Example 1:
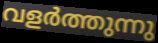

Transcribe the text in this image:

വളർത്തുന്നു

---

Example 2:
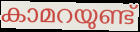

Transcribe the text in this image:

കാമറയുണ്ട്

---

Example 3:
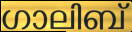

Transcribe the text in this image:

ഗാലിബ്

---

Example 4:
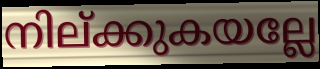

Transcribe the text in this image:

നില്ക്കുകയല്ലേ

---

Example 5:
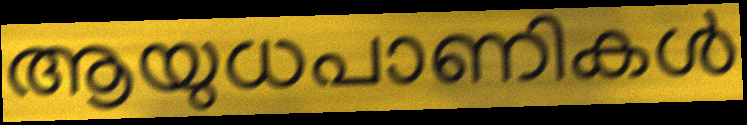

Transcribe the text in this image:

ആയുധപാണികൾ